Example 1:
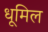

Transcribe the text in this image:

धूमिल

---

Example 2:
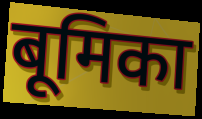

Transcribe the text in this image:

बूमिका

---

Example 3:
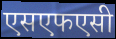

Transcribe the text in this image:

एसएफएसी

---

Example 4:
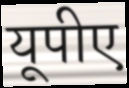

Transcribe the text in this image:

यूपीए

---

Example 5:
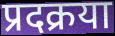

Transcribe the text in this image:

प्रदक्रया